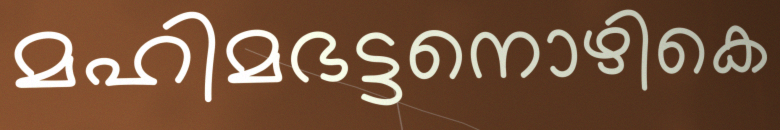
മഹിമഭട്ടനൊഴികെ